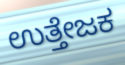
ಉತ್ತೇಜಕ